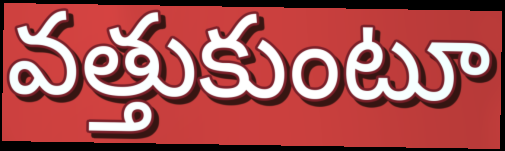
వత్తుకుంటూ